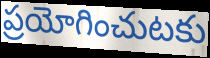
ప్రయోగించుటకు